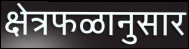
क्षेत्रफळानुसार